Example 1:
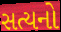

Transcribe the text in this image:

સત્યનો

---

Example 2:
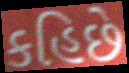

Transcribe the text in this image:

કહિછે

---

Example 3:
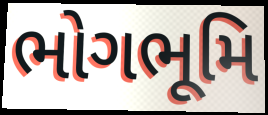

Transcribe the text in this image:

ભોગભૂમિ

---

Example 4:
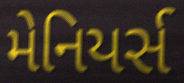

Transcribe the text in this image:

મેનિયર્સ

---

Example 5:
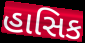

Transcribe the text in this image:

હાસિક